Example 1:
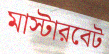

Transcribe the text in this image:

মাস্টারবেট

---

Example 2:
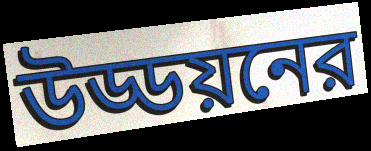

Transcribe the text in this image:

উড্ডয়নের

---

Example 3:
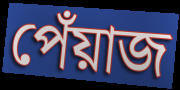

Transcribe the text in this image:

পেঁয়াজ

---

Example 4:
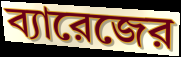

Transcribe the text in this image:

ব্যারেজের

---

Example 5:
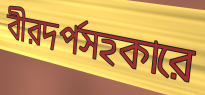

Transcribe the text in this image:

বীরদর্পসহকারে